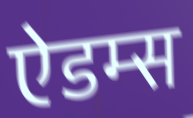
ऐडम्स